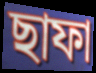
ছাফা